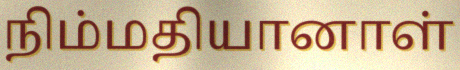
நிம்மதியானாள்